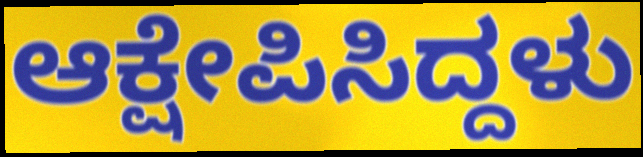
ಆಕ್ಷೇಪಿಸಿದ್ದಳು